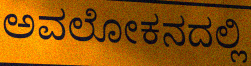
ಅವಲೋಕನದಲ್ಲಿ